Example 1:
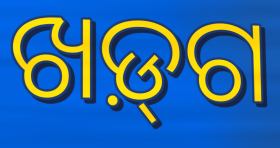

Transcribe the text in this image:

ଖଡ଼୍‌ଗ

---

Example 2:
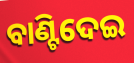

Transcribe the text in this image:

ବାଣ୍ଟିଦେଇ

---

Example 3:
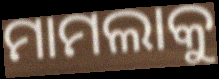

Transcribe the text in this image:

ମାମଲାକୁ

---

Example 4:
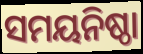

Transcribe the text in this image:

ସମୟନିଷ୍ଠା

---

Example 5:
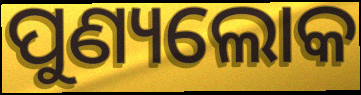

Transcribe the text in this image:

ପୁଣ୍ୟଲୋକ